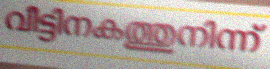
വീട്ടിനകത്തുനിന്ന്